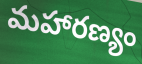
మహారణ్యం